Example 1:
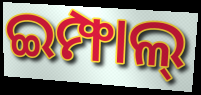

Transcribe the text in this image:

ଇମ୍ଫାଲ୍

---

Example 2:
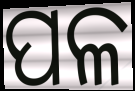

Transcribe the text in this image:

ପଳ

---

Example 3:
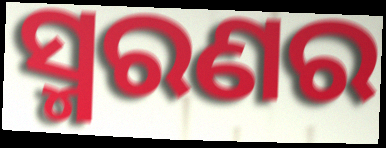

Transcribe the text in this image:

ସ୍ମରଣର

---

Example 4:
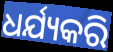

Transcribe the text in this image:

ଧର୍ଯ୍ୟକରି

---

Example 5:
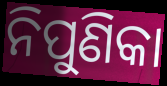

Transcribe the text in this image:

ନିପୁଣିକା